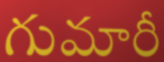
గుమారీ